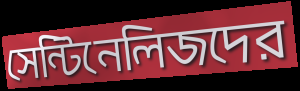
সেন্টিনেলিজদের